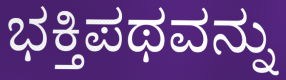
ಭಕ್ತಿಪಥವನ್ನು